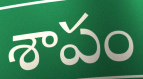
శాపం